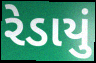
રેડાયું